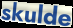
skulde